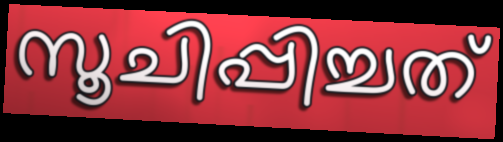
സൂചിപ്പിച്ചത്